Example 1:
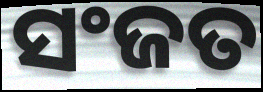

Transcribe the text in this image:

ସଂଜତ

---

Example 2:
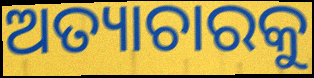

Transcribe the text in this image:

ଅତ୍ୟାଚାରକୁ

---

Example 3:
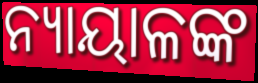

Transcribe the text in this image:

ନ୍ୟାୟାଳଙ୍କ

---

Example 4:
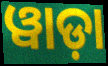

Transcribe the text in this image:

ୱାଡ଼ା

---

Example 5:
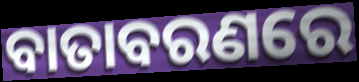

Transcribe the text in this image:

ବାତାବରଣରେ